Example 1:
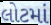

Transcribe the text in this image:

લોટમાં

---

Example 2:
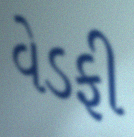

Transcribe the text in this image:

વેડફી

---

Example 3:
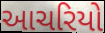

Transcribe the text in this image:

આચરિયો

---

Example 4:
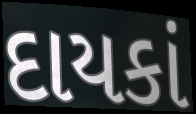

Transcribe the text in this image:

દાયકાં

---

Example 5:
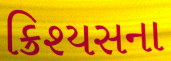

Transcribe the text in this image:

ક્રિશ્યસના